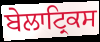
ਬੇਲਾਟ੍ਰਿਕਸ